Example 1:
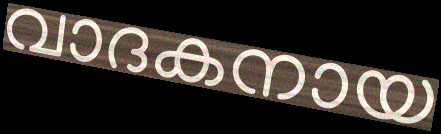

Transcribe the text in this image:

വാദകനായ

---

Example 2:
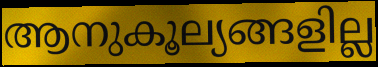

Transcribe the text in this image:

ആനുകൂല്യങ്ങളില്ല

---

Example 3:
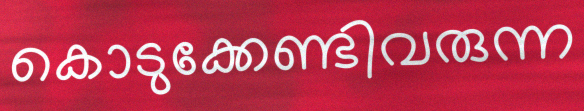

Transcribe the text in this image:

കൊടുക്കേണ്ടിവരുന്ന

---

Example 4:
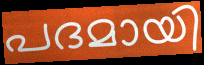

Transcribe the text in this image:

പദമായി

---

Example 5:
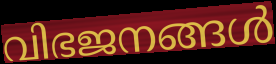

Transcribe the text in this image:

വിഭജനങ്ങൾ